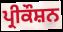
ਪ੍ਰੀਕੌਸ਼ਨ